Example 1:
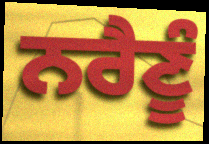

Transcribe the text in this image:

ਨਰੈਣੂੰ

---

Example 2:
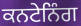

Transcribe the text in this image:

ਕਨਟੇਨਿੰਗ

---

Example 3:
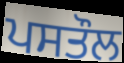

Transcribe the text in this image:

ਪਸਤੌਲ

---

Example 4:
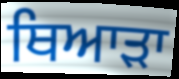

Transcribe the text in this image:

ਥਿਆੜਾ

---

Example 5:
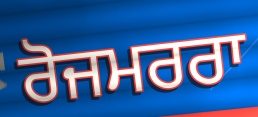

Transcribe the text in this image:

ਰੋਜਮਰਰਾ